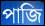
পাজি